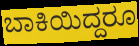
ಬಾಕಿಯಿದ್ದರೂ